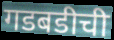
गडबडीची